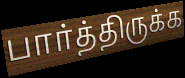
பார்த்திருக்க